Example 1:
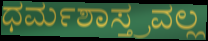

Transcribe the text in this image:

ಧರ್ಮಶಾಸ್ತ್ರವಲ್ಲ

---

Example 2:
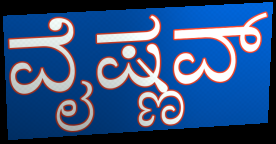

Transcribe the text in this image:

ವೈಷ್ಣವ್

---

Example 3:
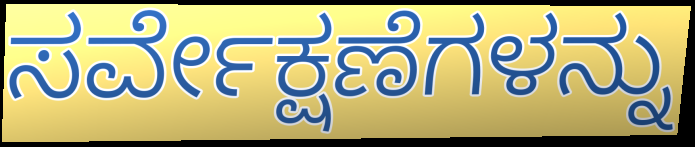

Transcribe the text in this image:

ಸರ್ವೇಕ್ಷಣೆಗಳನ್ನು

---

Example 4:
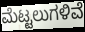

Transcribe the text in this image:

ಮೆಟ್ಟಲುಗಳಿವೆ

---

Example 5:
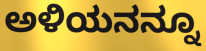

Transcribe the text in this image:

ಅಳಿಯನನ್ನೂ